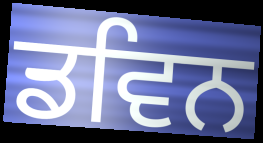
ਡਵਿਨ